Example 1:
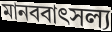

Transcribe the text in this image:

মানববাৎসল্য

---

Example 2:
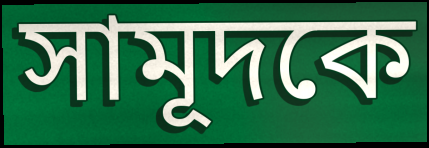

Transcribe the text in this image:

সামূদকে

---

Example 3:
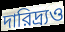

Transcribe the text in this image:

দারিদ্র্যও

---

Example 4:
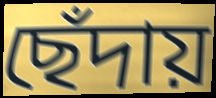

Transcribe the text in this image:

ছেঁদায়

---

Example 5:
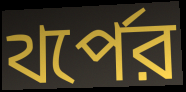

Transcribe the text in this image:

থর্পের